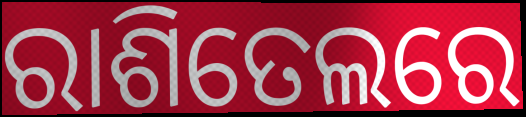
ରାଶିତେଲରେ